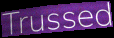
Trussed